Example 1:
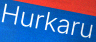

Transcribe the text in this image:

Hurkaru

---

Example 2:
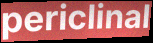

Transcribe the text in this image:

periclinal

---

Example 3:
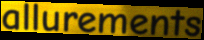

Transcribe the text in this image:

allurements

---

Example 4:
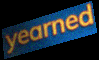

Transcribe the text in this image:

yearned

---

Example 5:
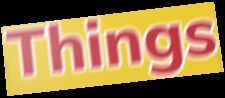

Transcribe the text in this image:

Things